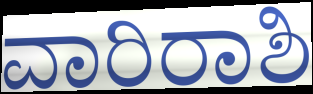
ವಾರಿರಾಶಿ